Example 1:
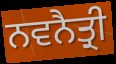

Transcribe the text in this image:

ਨਵਨੈਤ੍ਰੀ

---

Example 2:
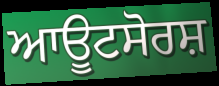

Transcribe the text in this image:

ਆਊਟਸੋਰਸ਼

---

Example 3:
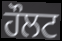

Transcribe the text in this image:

ਹੌਲਟ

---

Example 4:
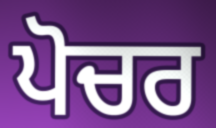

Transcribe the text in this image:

ਪੋਚਰ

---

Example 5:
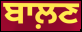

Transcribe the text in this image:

ਬਾਲ਼ਣ